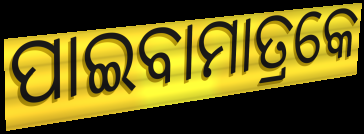
ପାଇବାମାତ୍ରକେ